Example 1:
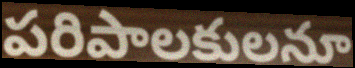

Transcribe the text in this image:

పరిపాలకులనూ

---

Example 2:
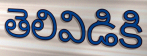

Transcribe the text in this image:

తెలివిడికి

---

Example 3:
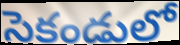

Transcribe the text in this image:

సెకండులో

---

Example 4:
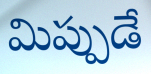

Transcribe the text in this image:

మిప్పుడే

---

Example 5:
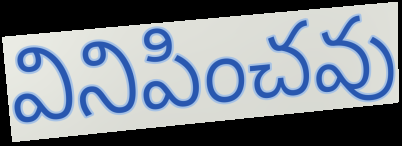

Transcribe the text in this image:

వినిపించవు